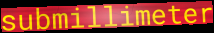
submillimeter